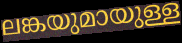
ലങ്കയുമായുള്ള